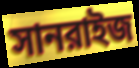
সানরাইজ